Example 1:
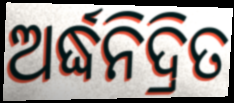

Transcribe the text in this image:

ଅର୍ଦ୍ଧନିଦ୍ରିତ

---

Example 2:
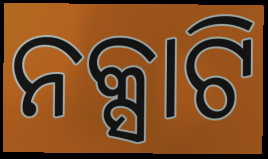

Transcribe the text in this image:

ନକ୍ସାଟି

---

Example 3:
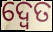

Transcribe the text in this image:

ଦ୍ବେତ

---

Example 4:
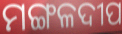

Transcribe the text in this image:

ମଙ୍ଗଳଦୀପ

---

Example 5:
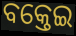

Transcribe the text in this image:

ବକ୍ତେଇ